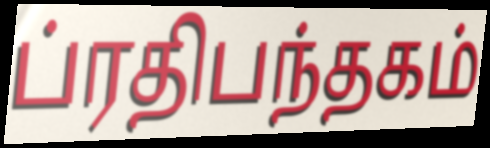
ப்ரதிபந்தகம்